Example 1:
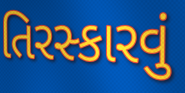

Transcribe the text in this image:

તિરસ્કારવું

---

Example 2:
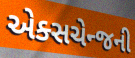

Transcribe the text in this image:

એક્સચેન્જની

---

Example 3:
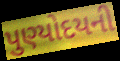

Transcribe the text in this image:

પુણ્યોદયની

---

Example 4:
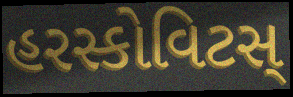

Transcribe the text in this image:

હરસ્કોવિટસ્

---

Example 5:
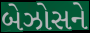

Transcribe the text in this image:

બેઝોસને